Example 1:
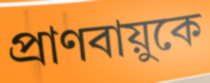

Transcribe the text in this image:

প্রাণবায়ুকে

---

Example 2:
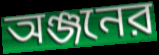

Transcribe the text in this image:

অঞ্জনের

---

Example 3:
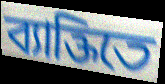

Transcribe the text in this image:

ব্যাক্তিতে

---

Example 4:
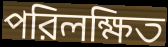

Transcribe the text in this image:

পরিলক্ষিত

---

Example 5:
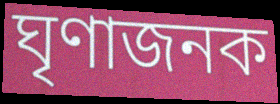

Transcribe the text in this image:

ঘৃণাজনক